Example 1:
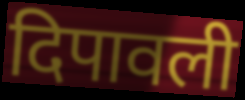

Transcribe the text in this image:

दिपावली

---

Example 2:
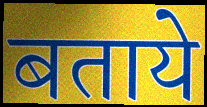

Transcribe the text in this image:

बताये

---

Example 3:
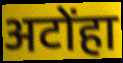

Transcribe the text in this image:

अटोंहा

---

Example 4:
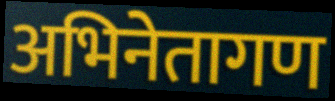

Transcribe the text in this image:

अभिनेतागण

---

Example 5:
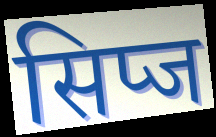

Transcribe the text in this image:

सिप्ज